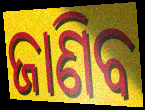
ଜାଣିବ